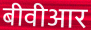
बीवीआर